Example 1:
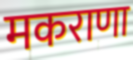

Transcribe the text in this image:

मकराणा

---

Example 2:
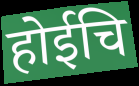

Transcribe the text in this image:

होईचि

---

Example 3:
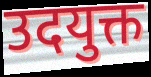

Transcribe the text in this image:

उदयुक्त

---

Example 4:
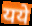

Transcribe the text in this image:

यये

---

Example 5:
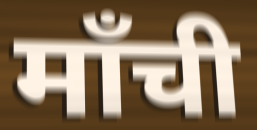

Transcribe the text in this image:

माँची